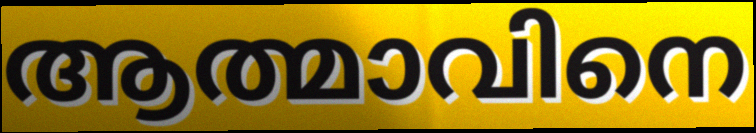
ആത്മാവിനെ